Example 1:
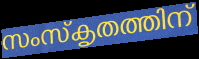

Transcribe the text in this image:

സംസ്‌കൃതത്തിന്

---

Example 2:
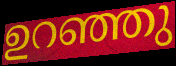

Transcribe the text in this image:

ഉറഞ്ഞു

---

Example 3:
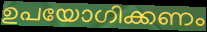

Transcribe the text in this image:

ഉപയോഗിക്കണം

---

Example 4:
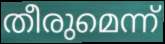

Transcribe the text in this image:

തീരുമെന്ന്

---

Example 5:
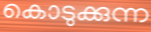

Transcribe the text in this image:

കൊടുക്കുന്ന